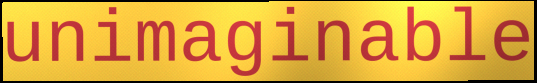
unimaginable